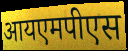
आयएमपीएस